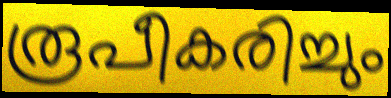
രൂപീകരിച്ചും